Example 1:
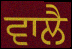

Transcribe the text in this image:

ਵਾਲੈ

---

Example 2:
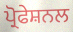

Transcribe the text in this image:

ਪ੍ਰੋਫੇਸ਼ਨਲ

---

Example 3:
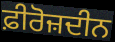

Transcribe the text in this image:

ਫ਼ੀਰੋਜ਼ਦੀਨ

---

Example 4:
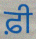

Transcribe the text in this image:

ਫ਼ੀ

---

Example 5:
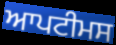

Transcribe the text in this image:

ਆਪਟੀਮਸ